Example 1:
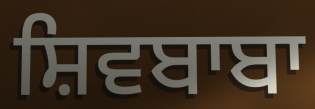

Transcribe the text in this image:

ਸ਼ਿਵਬਾਬਾ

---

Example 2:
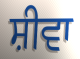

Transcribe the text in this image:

ਸ਼ੀਵਾ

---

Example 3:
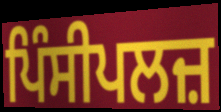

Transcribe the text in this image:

ਪਿੰਸੀਪਲਜ਼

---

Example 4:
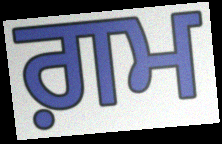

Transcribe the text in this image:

ਗ਼ਮ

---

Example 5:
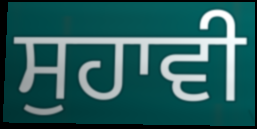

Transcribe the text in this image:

ਸੁਹਾਵੀ